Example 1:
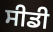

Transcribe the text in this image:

ਸੀਡੀ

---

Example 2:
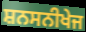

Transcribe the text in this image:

ਸ਼ਨਸਨੀਖੇਜ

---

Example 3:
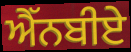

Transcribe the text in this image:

ਐੱਨਬੀਏ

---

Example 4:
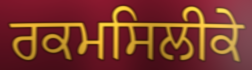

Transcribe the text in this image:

ਰਕਮਸਿਲੀਕੇ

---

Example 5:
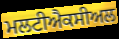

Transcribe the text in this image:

ਮਲਟੀਐਕਸੀਅਲ